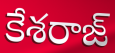
కేశరాజ్